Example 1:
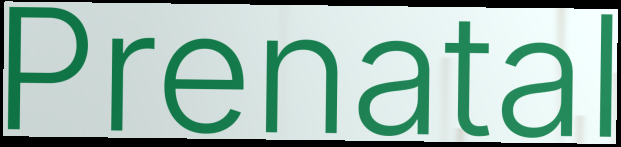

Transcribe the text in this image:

Prenatal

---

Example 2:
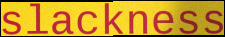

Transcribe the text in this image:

slackness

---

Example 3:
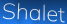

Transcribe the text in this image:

Shalet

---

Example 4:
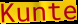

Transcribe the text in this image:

Kunte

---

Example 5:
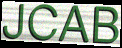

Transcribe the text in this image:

JCAB